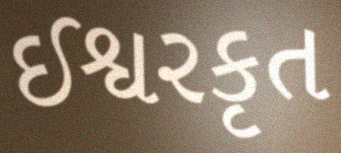
ઈશ્વરકૃત